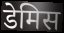
डेमिस